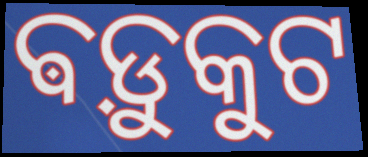
ଵଡ଼ୁକୁଟ